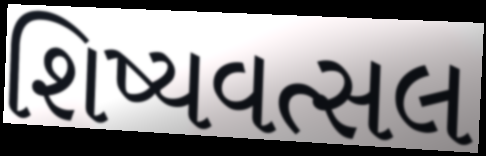
શિષ્યવત્સલ